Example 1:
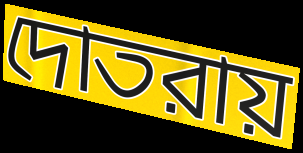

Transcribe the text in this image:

দোতরায়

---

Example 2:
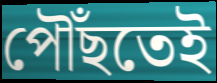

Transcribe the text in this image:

পৌঁছতেই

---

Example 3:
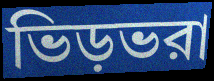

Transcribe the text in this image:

ভিড়ভরা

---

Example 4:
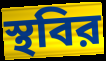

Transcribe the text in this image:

স্থবির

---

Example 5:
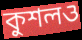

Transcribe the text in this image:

কুশলও